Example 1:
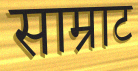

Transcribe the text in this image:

साम्राट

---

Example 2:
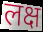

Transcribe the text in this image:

लक्ष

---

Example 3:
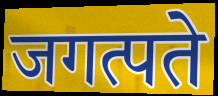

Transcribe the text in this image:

जगत्पते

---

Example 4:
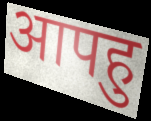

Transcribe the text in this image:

आपहु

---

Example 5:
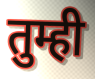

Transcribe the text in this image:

तुम्ही